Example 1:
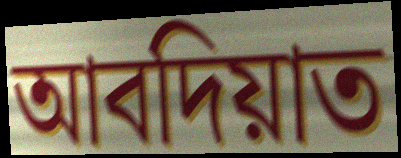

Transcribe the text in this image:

আবদিয়াত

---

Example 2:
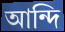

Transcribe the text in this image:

আন্দি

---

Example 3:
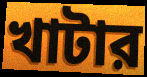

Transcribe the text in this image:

খাটার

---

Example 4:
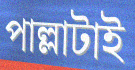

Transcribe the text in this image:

পাল্লাটাই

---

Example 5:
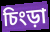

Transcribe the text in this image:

চিংড়া